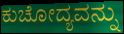
ಕುಚೋದ್ಯವನ್ನು